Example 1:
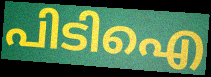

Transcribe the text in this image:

പിടിഐ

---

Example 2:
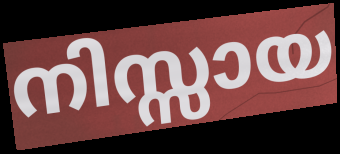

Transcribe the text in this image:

നിസ്സായ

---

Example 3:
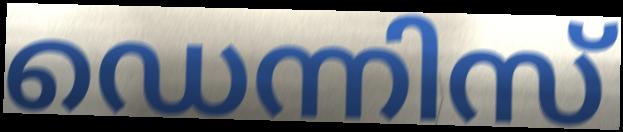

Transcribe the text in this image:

ഡെന്നിസ്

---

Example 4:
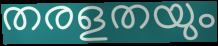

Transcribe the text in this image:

തരളതയും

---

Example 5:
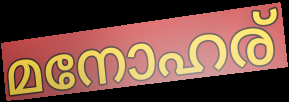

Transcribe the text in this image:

മനോഹര്